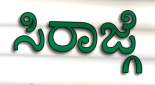
ಸಿರಾಜ್ಗೆ